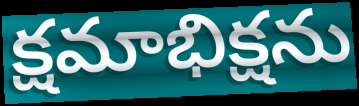
క్షమాభిక్షను